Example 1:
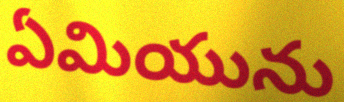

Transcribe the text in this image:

ఏమియును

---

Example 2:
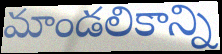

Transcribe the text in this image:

మాండలికాన్ని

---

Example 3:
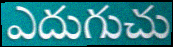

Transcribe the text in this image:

ఎదుగుచు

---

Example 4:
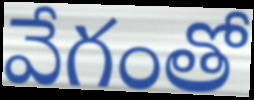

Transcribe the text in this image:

వేగంతో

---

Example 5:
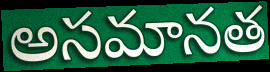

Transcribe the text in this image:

అసమానత